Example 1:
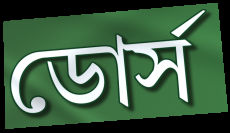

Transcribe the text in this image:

ডোর্স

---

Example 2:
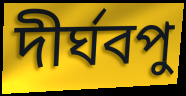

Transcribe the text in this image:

দীর্ঘবপু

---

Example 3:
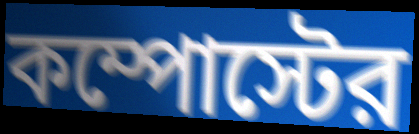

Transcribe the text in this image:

কম্পোস্টের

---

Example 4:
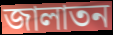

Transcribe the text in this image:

জালাতন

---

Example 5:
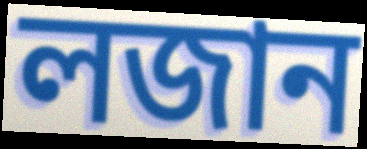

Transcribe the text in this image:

লজান